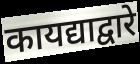
कायद्याद्वारे